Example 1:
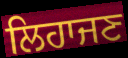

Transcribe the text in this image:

ਲਿਹਾਜਣ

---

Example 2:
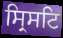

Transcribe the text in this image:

ਸ੍ਰਿਸਟਿ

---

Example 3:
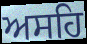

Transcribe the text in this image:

ਅਸਹਿ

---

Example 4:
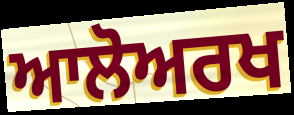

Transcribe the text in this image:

ਆਲੋਅਰਖ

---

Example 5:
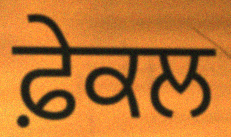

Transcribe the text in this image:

ਫ਼ੇਕਲ